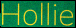
Hollie